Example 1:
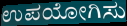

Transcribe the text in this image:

ಉಪಯೋಗಿಸು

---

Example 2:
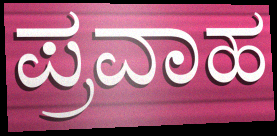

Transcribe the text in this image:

ಪ್ರವಾಹ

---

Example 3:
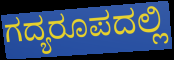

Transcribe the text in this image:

ಗದ್ಯರೂಪದಲ್ಲಿ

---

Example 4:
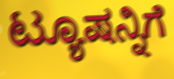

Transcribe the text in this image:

ಟ್ಯೂಷನ್ನಿಗೆ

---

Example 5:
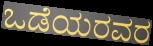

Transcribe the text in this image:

ಒಡೆಯರವರ